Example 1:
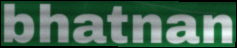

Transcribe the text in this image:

bhatnan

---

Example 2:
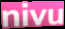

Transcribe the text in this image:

nivu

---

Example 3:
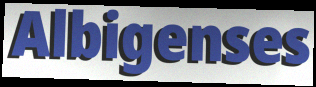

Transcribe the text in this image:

Albigenses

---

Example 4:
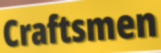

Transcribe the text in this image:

Craftsmen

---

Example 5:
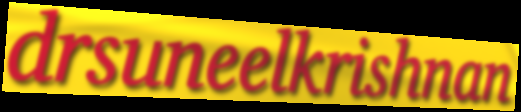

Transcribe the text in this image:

drsuneelkrishnan